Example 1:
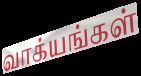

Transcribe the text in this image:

வாக்யங்கள்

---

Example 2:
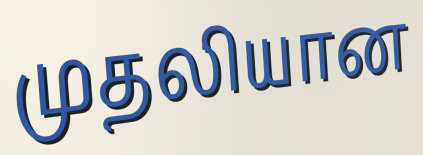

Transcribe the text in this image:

முதலியான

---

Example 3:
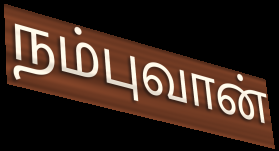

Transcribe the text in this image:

நம்புவான்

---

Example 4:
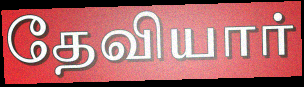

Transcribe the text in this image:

தேவியார்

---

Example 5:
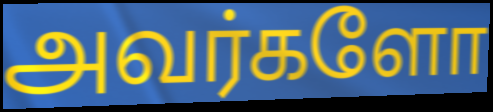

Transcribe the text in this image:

அவர்களோ